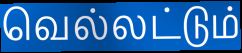
வெல்லட்டும்